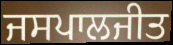
ਜਸਪਾਲਜੀਤ